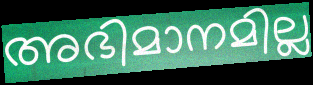
അഭിമാനമില്ല